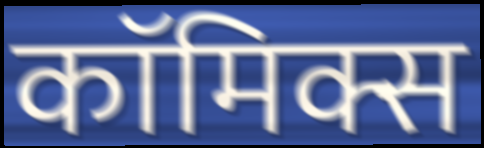
कॉमिक्स